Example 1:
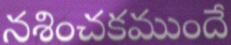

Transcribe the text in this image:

నశించకముందే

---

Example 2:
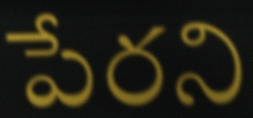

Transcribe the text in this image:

పేరని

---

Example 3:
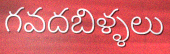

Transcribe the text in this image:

గవదబిళ్ళలు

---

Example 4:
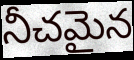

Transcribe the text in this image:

నీచమైన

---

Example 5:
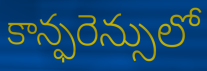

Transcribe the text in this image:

కాన్ఫరెన్సులో